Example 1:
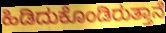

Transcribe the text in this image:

ಹಿಡಿದುಕೊಂಡಿರುತ್ತಾನೆ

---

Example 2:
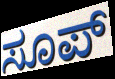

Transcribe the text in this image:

ಸೂಪ್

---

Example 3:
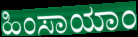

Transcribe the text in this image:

ಹಿಂಸಾಯಾಂ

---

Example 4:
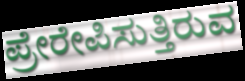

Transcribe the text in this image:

ಪ್ರೇರೇಪಿಸುತ್ತಿರುವ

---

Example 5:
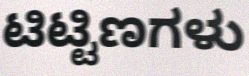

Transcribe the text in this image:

ಟಿಟ್ಟಿಣಗಳು